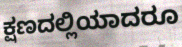
ಕ್ಷಣದಲ್ಲಿಯಾದರೂ